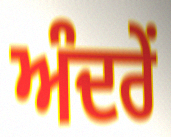
ਅੰਦਰੇਂ